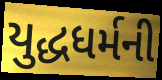
યુદ્ધધર્મની